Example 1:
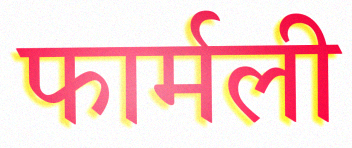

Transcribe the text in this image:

फार्मली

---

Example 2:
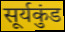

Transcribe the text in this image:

सूर्यकुंड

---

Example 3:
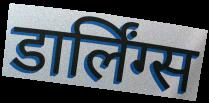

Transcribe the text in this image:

डार्लिंग्स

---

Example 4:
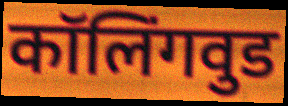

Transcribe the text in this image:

कॉलिंगवुड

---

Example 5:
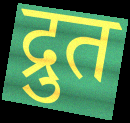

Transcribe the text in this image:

द्रुत